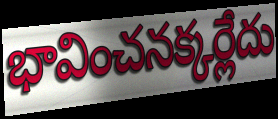
భావించనక్కర్లేదు